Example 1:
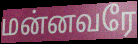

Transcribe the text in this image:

மன்னவரே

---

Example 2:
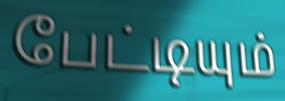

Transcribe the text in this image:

பேட்டியும்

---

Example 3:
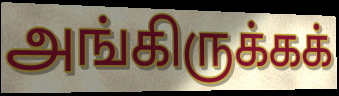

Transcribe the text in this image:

அங்கிருக்கக்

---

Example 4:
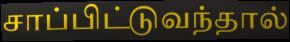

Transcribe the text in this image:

சாப்பிட்டுவந்தால்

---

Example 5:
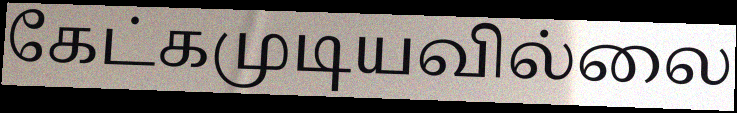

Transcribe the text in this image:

கேட்கமுடியவில்லை